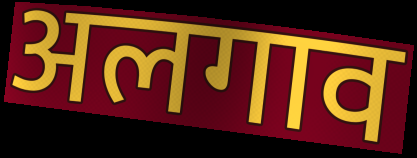
अलगाव